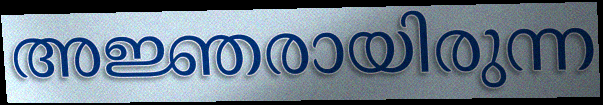
അജ്ഞരായിരുന്ന